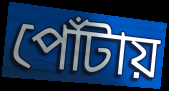
পোঁটায়